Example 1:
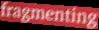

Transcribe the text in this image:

fragmenting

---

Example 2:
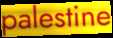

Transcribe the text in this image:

palestine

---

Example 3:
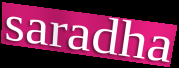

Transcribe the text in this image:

saradha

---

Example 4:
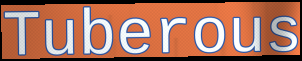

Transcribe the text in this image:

Tuberous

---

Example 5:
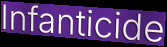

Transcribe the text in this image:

Infanticide